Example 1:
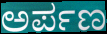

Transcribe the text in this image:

ಅರ್ಪಣ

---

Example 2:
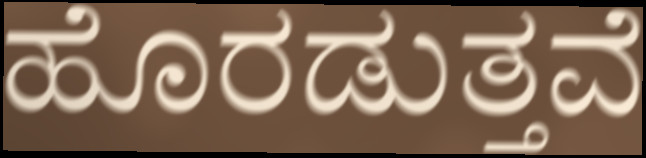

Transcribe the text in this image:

ಹೊರಡುತ್ತವೆ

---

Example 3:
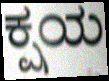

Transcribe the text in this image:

ಕ್ಷಯ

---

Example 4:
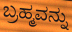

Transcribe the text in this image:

ಬ್ರಹ್ಮವನ್ನು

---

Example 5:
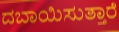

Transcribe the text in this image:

ದಬಾಯಿಸುತ್ತಾರೆ